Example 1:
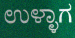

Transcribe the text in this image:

ಉಳ್ಳಾಗ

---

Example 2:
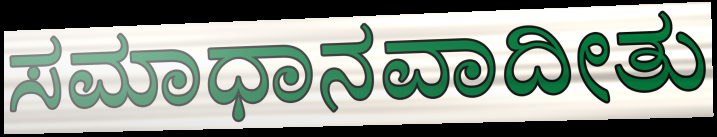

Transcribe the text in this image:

ಸಮಾಧಾನವಾದೀತು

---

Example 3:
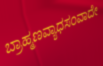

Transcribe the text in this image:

ಬ್ರಾಹ್ಮಣವ್ಯಾಧಸಂವಾದೇ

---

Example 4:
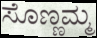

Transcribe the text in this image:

ಸೊಣ್ಣಮ್ಮ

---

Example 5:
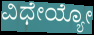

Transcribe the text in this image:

ವಿಧೇಯ್ಯೋ